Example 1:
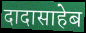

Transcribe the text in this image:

दादासाहेब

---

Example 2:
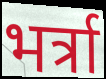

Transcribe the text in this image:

भर्त्रा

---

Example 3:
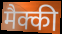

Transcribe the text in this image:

मैक्की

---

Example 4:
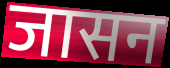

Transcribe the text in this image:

जासन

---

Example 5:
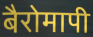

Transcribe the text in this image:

बैरोमापी